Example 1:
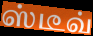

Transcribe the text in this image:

ஸ்டீவ்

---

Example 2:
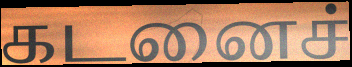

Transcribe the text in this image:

கடனைச்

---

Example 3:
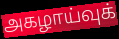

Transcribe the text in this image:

அகழாய்வுக்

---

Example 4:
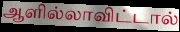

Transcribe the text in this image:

ஆளில்லாவிட்டால்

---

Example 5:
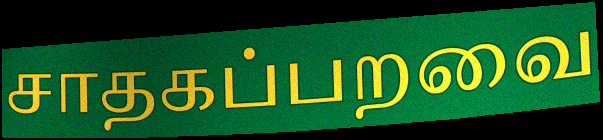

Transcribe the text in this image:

சாதகப்பறவை